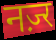
नज़्र